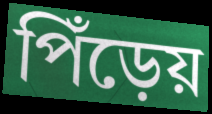
পিঁড়েয়